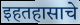
इहतहासाचे